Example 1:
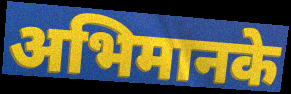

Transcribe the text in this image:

अभिमानके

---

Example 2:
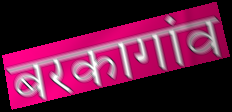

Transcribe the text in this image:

बरकागांव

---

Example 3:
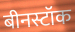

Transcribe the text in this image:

बीनस्टॉक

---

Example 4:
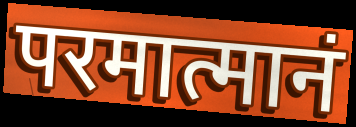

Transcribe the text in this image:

परमात्मानं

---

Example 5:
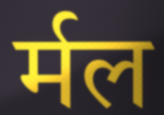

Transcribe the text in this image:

र्मल